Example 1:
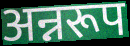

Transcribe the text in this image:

अन्नरूप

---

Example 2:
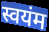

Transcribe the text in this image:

स्वयंम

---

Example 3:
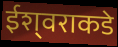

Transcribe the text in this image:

ईश्वराकडे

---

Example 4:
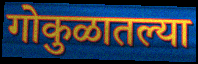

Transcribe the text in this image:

गोकुळातल्या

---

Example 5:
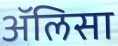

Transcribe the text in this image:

ॲलिसा